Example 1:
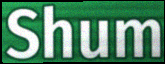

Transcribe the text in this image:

Shum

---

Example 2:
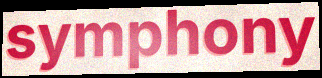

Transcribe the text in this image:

symphony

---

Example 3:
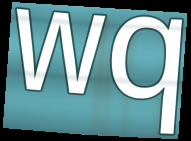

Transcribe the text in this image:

wq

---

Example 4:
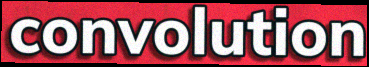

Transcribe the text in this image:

convolution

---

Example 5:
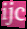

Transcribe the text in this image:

ijc